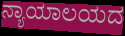
ನ್ಯಾಯಾಲಯದ